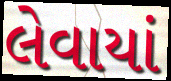
લેવાયાં